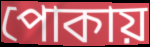
পোকায়